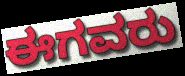
ಈಗವರು